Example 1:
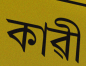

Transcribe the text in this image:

কাৱী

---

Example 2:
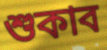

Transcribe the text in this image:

শুকাব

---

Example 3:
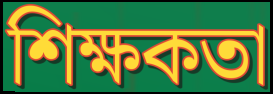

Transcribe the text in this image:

শিক্ষকতা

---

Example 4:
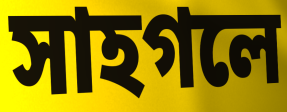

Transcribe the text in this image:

সাহগলে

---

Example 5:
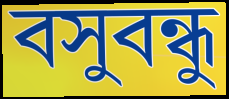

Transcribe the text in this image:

বসুবন্ধু